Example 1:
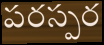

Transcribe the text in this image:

పరస్పర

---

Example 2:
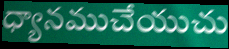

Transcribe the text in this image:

ధ్యానముచేయుచు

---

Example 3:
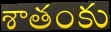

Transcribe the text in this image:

శాతంకు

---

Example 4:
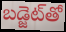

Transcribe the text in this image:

బడ్జెట్‌తో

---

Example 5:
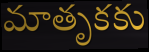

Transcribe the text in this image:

మాతృకకు